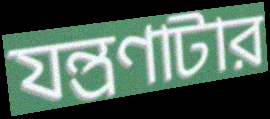
যন্ত্রণাটার